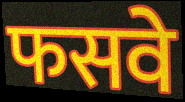
फसवे